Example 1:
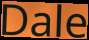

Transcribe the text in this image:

Dale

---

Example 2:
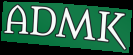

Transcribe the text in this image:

ADMK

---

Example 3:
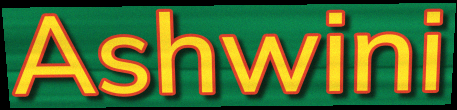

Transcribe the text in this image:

Ashwini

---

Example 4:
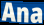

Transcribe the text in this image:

Ana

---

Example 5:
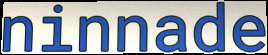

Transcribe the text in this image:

ninnade